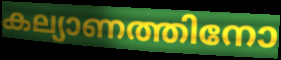
കല്യാണത്തിനോ